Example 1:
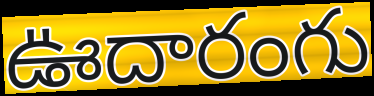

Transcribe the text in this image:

ఊదారంగు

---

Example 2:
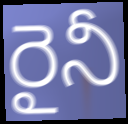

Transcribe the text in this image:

రైనీ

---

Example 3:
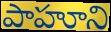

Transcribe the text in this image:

పాహూని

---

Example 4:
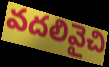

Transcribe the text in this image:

వదలివైచి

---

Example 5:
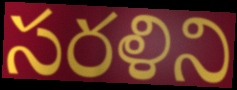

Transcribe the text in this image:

సరళిని